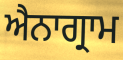
ਐਨਾਗ੍ਰਾਮ